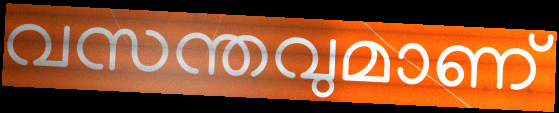
വസന്തവുമാണ്